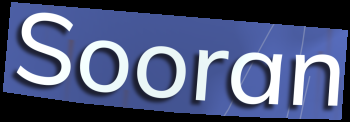
Sooran